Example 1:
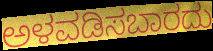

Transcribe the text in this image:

ಅಳವಡಿಸಬಾರದು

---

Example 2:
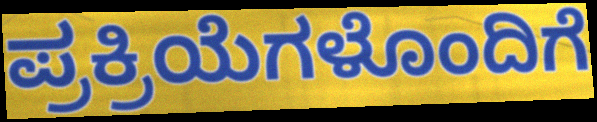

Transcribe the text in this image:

ಪ್ರಕ್ರಿಯೆಗಳೊಂದಿಗೆ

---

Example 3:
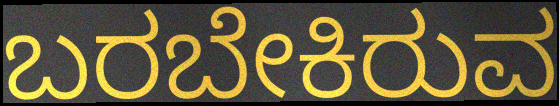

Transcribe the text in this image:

ಬರಬೇಕಿರುವ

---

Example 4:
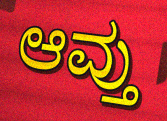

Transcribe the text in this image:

ಆವ್ತು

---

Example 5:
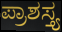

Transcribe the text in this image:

ಪ್ರಾಶಸ್ತ್ಯ